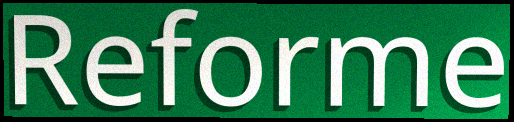
Reforme